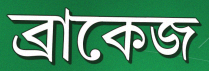
ব্রাকেজ